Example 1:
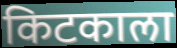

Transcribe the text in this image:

किटकाला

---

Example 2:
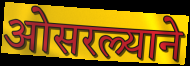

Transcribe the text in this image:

ओसरल्याने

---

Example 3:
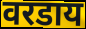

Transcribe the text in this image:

वरडाय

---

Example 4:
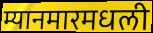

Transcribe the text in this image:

म्यानमारमधली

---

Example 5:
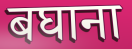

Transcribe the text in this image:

बघाना